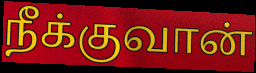
நீக்குவான்